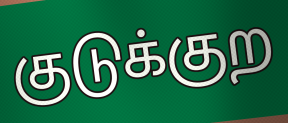
குடுக்குற